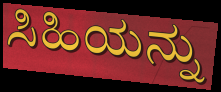
ಸಿಹಿಯನ್ನು